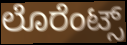
ಲೊರೆಂಟ್ಸ್